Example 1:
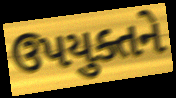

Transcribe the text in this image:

ઉપયુક્તને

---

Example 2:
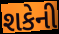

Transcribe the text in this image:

શકેની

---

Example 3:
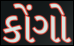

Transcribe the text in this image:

કોંગો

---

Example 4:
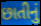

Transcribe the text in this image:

છાતીનું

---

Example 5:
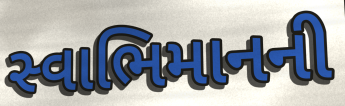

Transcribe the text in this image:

સ્વાભિમાનની